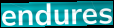
endures